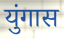
युंगास